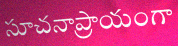
సూచనాప్రాయంగా